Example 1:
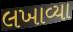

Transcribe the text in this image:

લખાવ્યા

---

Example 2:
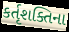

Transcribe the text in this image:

કર્તૃશક્તિના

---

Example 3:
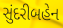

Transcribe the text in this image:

સુંદરીબહેન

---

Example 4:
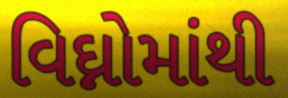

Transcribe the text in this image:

વિઘ્નોમાંથી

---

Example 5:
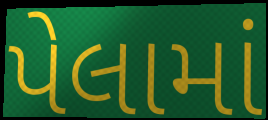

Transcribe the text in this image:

પેલામાં